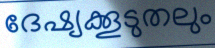
ദേഷ്യക്കൂടുതലും